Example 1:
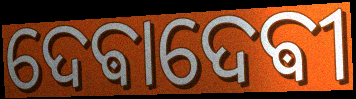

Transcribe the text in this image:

ଦେଵାଦେଵୀ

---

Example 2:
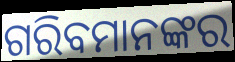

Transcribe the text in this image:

ଗରିବମାନଙ୍କର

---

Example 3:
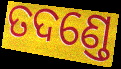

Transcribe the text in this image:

ତଦଣ୍ଡେ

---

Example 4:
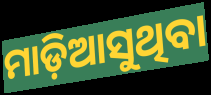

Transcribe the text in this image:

ମାଡ଼ିଆସୁଥିବା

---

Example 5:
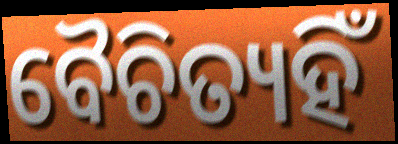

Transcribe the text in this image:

ବୈଚିତ୍ୟହିଁ